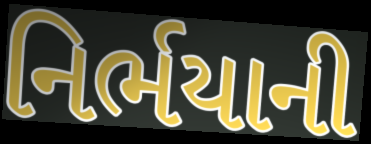
નિર્ભયાની